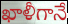
ఖాళీగానే